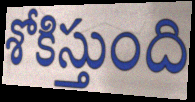
శోకిస్తుంది